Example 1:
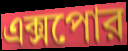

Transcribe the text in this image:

এক্সপোর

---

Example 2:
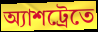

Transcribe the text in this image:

অ্যাশট্রেতে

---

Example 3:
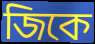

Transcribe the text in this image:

জিকে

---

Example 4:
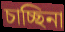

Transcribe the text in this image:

চাচ্ছিনা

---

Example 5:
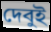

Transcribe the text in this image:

দেবুই